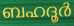
ബഹദൂർ